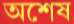
অশেষ